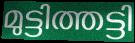
മുട്ടിത്തട്ടി